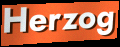
Herzog